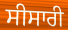
ਸੀਸਾਰੀ